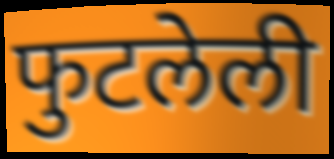
फुटलेली